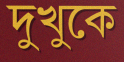
দুখুকে